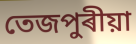
তেজপুৰীয়া